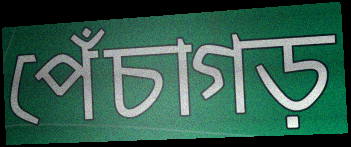
পেঁচাগড়